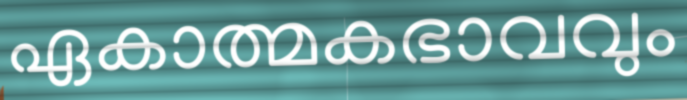
ഏകാത്മകഭാവവും